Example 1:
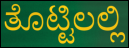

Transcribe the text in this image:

ತೊಟ್ಟಿಲಲ್ಲಿ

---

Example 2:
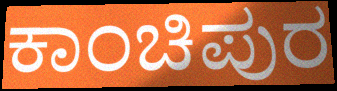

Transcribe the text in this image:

ಕಾಂಚಿಪುರ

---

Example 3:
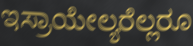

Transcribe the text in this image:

ಇಸ್ರಾಯೇಲ್ಯರೆಲ್ಲರೂ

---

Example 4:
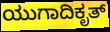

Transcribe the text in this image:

ಯುಗಾದಿಕೃತ್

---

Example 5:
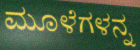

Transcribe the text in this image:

ಮೂಳೆಗಳನ್ನ